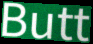
Butt